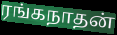
ரங்கநாதன்